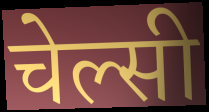
चेल्सी